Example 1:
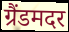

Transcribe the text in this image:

ग्रैंडमदर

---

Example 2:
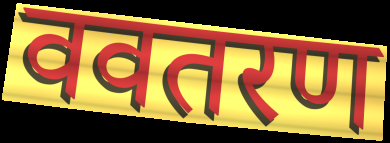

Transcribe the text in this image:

ववतरण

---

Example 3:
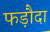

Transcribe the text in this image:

फड़ौदा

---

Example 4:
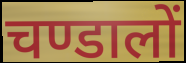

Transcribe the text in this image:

चण्डालों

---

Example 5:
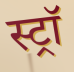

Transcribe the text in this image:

स्ट्रॉ